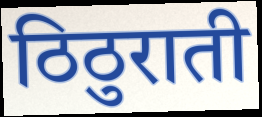
ठिठुराती